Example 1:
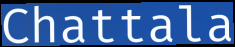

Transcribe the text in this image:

Chattala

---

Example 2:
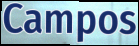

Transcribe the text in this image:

Campos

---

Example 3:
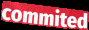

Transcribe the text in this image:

commited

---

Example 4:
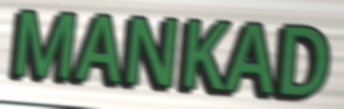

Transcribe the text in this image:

MANKAD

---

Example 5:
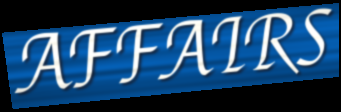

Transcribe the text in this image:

AFFAIRS